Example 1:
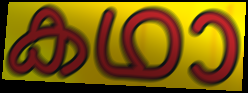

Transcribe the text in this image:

കഥാ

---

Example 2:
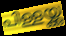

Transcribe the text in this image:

പിള്ളയ്ക്കു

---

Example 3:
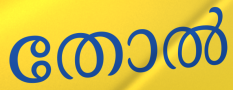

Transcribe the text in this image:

തോൽ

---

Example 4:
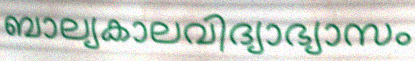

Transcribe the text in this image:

ബാല്യകാലവിദ്യാഭ്യാസം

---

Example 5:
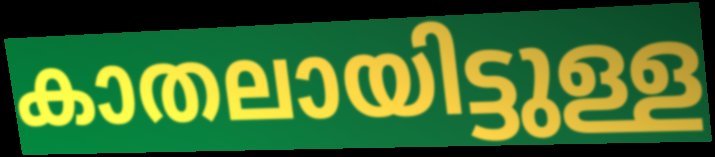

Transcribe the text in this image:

കാതലായിട്ടുള്ള